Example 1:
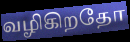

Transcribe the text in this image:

வழிகிறதோ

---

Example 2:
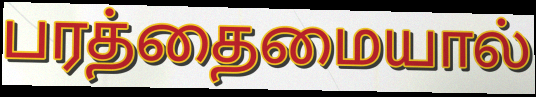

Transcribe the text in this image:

பரத்தைமையால்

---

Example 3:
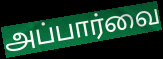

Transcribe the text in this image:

அப்பார்வை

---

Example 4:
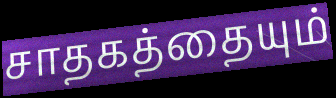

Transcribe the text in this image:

சாதகத்தையும்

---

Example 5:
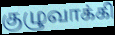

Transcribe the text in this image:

குழுவாக்கி